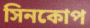
সিনকোপ